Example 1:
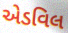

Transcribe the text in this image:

એડવિલ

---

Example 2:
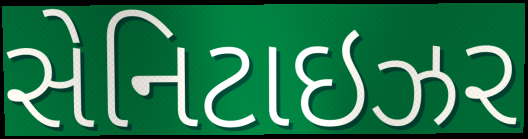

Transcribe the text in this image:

સેનિટાઇઝર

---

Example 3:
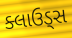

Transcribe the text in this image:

ક્લાઉડ્સ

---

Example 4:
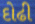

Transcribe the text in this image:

દોઢી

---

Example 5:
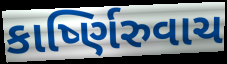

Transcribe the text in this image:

કાર્ષ્ણિરુવાચ